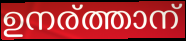
ഉനര്ത്താന്